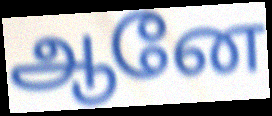
ஆனே